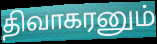
திவாகரனும்